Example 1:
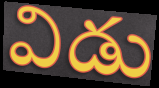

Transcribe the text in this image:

విడు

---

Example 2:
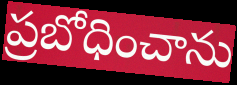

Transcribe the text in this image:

ప్రబోధించాను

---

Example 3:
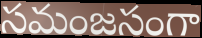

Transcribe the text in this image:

సమంజసంగా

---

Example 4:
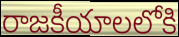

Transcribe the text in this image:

రాజకీయాలలోకి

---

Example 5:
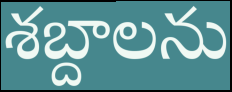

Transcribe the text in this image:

శబ్దాలను